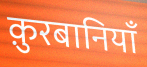
क़ुरबानियाँ